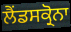
ਲੈਂਡਸਕ੍ਰੋਨਾ